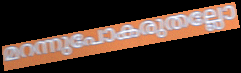
മറന്നുപോകരുതല്ലോ